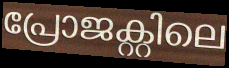
പ്രോജക്റ്റിലെ